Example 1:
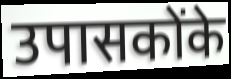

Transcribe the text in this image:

उपासकोंके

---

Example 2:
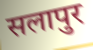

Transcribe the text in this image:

सलापुर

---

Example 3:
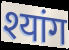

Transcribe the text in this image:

श्यांग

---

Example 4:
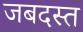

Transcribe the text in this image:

जबदस्त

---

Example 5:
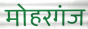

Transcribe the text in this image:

मोहरगंज